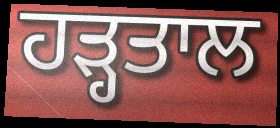
ਹੜ੍ਹਤਾਲ